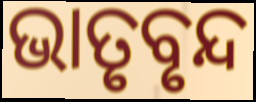
ଭାତୃବୃନ୍ଦ